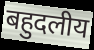
बहुदलीय